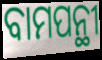
ବାମପନ୍ଥୀ